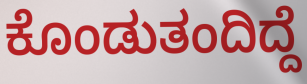
ಕೊಂಡುತಂದಿದ್ದೆ